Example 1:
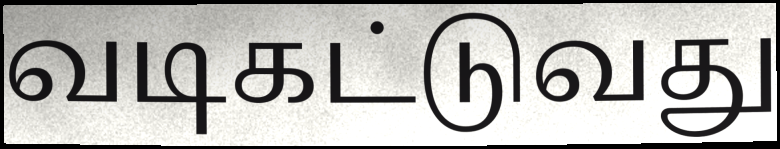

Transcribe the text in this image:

வடிகட்டுவது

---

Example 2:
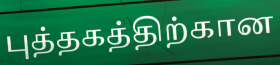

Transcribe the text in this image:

புத்தகத்திற்கான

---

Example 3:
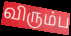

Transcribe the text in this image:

விரும்ப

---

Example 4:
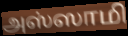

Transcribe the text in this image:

அஸ்ஸாமி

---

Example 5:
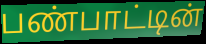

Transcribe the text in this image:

பண்பாட்டின்